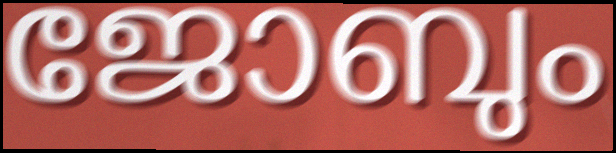
ജോബും